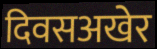
दिवसअखेर